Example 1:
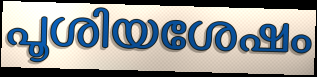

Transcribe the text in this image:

പൂശിയശേഷം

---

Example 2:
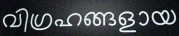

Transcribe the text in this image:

വിഗ്രഹങ്ങളായ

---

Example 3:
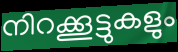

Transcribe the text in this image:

നിറക്കൂട്ടുകളും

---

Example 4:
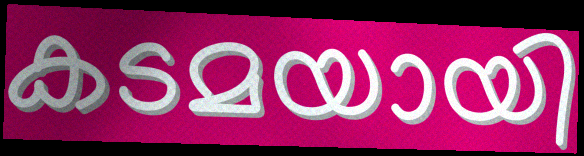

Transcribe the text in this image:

കടമയായി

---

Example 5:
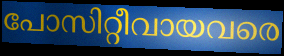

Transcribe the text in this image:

പോസിറ്റീവായവരെ